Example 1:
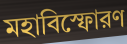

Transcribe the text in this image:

মহাবিস্ফোরণ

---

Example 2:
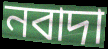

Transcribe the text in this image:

নবাদা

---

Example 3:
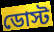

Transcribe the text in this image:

ডোস্ট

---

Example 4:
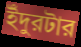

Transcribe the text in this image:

ইঁদুরটার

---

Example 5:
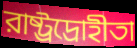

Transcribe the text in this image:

রাষ্ট্রদ্রোহীতা